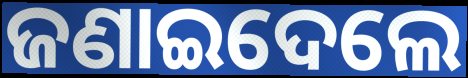
ଜଣାଇଦେଲେ